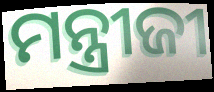
ମନ୍ତ୍ରୀଜୀ